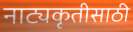
नाट्यकृतीसाठी